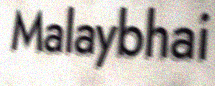
Malaybhai